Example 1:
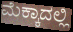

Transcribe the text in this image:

ಮೆಕ್ಕಾದಲ್ಲಿ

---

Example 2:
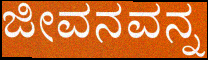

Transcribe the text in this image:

ಜೀವನವನ್ನ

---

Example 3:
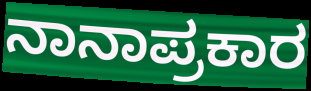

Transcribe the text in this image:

ನಾನಾಪ್ರಕಾರ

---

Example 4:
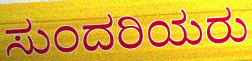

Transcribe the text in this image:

ಸುಂದರಿಯರು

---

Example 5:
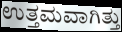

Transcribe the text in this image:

ಉತ್ತಮವಾಗಿತ್ತು